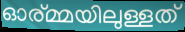
ഓര്മ്മയിലുള്ളത്